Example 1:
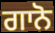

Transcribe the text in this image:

ਗਾਨੋ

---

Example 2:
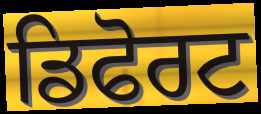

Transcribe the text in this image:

ਡਿਫੋਰਟ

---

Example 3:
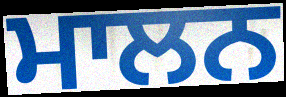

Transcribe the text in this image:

ਮਾਲਨ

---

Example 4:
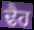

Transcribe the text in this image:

ਢੈਹ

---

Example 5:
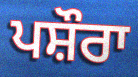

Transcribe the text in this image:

ਪਸ਼ੌਰਾ